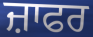
ਜ਼ਾਫਰ